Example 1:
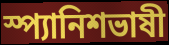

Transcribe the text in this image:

স্প্যানিশভাষী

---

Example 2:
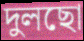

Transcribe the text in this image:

দুলছো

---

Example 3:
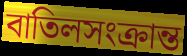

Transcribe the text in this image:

বাতিলসংক্রান্ত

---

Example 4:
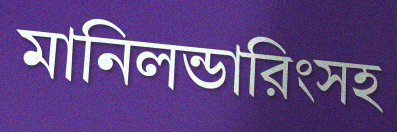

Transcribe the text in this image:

মানিলন্ডারিংসহ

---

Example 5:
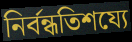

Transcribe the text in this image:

নির্বন্ধতিশয্যে